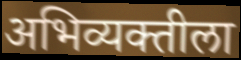
अभिव्यक्तीला